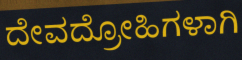
ದೇವದ್ರೋಹಿಗಳಾಗಿ